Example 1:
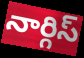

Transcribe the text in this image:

నార్గిస్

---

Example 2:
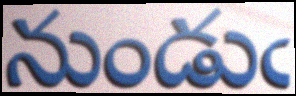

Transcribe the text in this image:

నుండుఁ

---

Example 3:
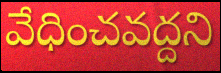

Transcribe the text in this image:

వేధించవద్దని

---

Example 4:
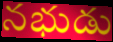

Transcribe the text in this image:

నభుడు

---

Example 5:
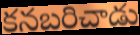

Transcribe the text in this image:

కనబరిచాడు